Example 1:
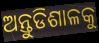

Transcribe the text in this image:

ଅନ୍ତୁଡିଶାଳକୁ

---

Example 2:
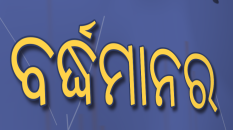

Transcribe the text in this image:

ବର୍ଦ୍ଧମାନର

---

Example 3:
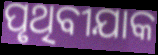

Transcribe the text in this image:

ପୃଥିବୀଯାକ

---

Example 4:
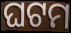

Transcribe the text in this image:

ଘଟମ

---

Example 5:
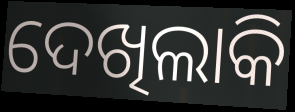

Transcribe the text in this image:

ଦେଖିଲାକି